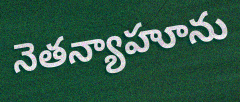
నెతన్యాహూను